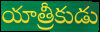
యాత్రీకుడు